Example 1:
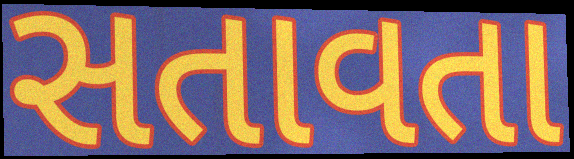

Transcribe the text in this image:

સતાવતા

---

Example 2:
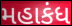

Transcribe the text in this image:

મહાકંધ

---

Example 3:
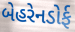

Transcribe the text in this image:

બેહરેનડોર્ફ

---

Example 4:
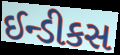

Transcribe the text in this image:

ઈન્ડીકસ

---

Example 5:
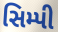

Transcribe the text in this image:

સિમ્પી